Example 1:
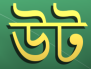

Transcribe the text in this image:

উট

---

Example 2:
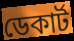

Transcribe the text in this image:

ডেকাৰ্ট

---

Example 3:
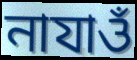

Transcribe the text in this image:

নাযাওঁ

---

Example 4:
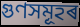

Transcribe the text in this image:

গুণসমূহৰ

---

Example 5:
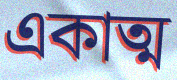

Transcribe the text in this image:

একাত্ম